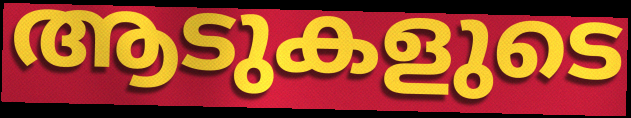
ആടുകളുടെ